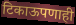
टिकाऊपणाही